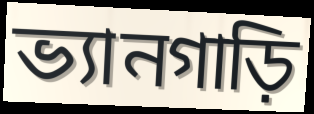
ভ্যানগাড়ি